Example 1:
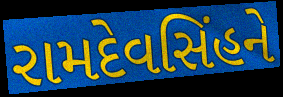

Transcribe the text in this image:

રામદેવસિંહને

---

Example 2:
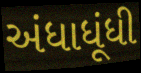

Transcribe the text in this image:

અંધાધૂંધી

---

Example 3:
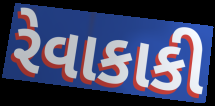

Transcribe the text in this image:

રેવાકાકી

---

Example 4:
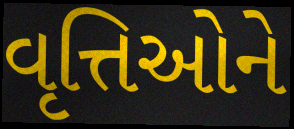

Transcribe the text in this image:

વૃત્તિઓને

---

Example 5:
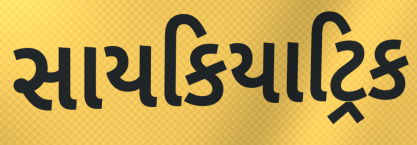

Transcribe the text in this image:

સાયકિયાટ્રિક